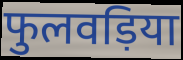
फुलवड़िया